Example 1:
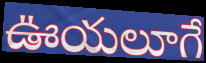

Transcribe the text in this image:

ఊయలూగే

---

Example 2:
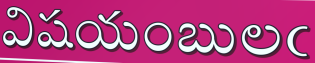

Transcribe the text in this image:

విషయంబులఁ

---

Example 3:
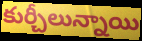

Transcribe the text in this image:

కుర్చీలున్నాయి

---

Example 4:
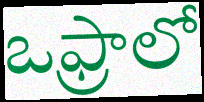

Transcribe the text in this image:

ఒఫ్రాలో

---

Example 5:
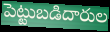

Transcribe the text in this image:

పెట్టుబడిదారుల